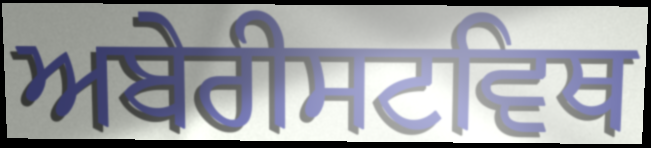
ਅਬੇਰੀਸਟਵਿਥ